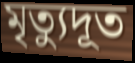
মৃত্যুদূত